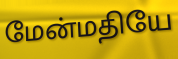
மேன்மதியே